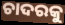
ଚାଦରକୁ